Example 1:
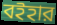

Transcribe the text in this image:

বইহার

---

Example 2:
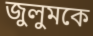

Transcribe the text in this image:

জুলুমকে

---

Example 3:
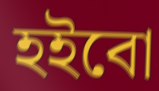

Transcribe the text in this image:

হইবো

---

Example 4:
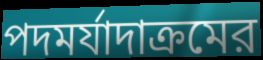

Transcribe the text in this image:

পদমর্যাদাক্রমের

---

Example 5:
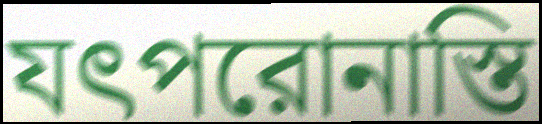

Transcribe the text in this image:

যৎপরোনাস্তি